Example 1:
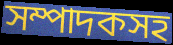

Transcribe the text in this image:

সম্পাদকসহ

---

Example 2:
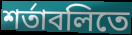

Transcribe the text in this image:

শর্তাবলিতে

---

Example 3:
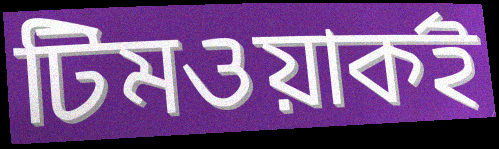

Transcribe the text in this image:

টিমওয়ার্কই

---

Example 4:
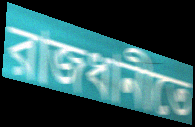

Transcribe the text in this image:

রাজধানীতে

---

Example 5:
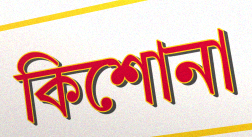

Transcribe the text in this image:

কিশোনা